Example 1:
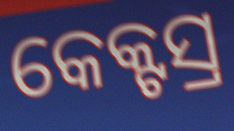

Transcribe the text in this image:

କେକ୍ଟସ୍ର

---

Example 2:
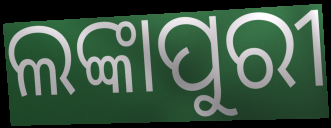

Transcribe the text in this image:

ଲଙ୍କାପୁରୀ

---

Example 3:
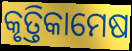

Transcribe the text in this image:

କୃତ୍ତିକାମେଷ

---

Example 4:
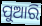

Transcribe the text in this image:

ପୁଆରି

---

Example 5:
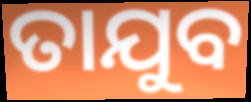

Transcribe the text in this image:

ତାଯୁବ